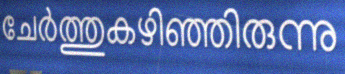
ചേർത്തുകഴിഞ്ഞിരുന്നു